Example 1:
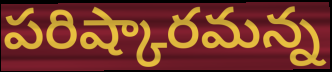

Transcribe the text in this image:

పరిష్కారమన్న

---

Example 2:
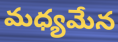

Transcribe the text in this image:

మధ్యమేన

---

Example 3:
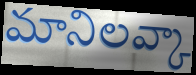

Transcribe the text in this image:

మానిలవ్కా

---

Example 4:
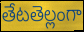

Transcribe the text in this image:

తేటతెల్లంగా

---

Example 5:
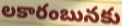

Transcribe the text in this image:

లకారంబునకు